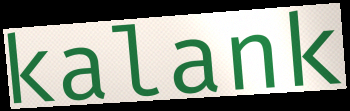
kalank